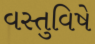
વસ્તુવિષે